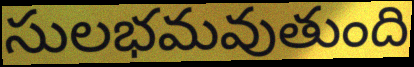
సులభమవుతుంది